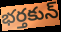
భర్తకున్